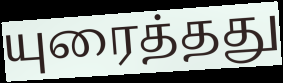
யுரைத்தது